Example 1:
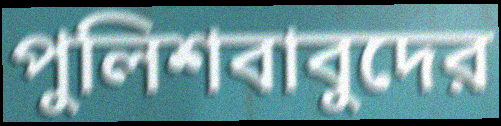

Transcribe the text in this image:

পুলিশবাবুদের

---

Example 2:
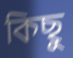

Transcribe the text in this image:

কিছু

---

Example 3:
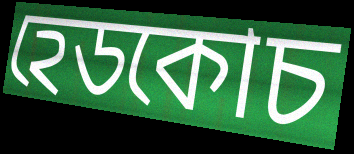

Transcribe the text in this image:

হেডকোচ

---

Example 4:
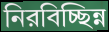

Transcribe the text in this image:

নিরবিচ্ছিন্ন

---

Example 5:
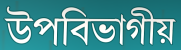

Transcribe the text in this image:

উপবিভাগীয়